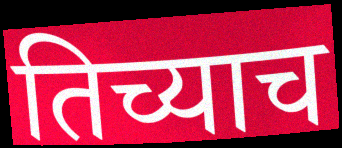
तिच्याच